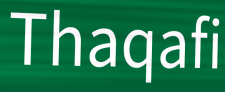
Thaqafi